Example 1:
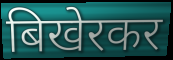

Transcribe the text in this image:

बिखेरकर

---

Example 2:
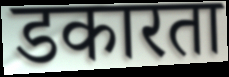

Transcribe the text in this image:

डकारता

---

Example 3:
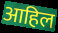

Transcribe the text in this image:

आहिल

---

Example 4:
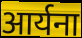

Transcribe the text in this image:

आर्यना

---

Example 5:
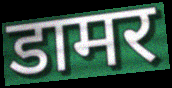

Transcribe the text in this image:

डामर